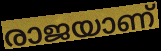
രാജയാണ്